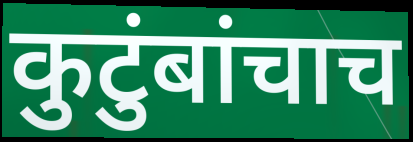
कुटुंबांचाच